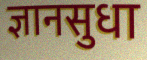
ज्ञानसुधा